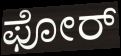
ಫೋರ್